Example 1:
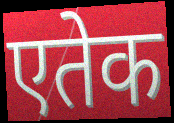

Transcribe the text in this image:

एतेक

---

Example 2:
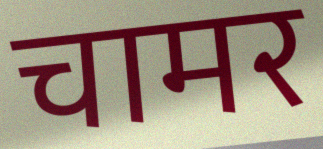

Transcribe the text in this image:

चामर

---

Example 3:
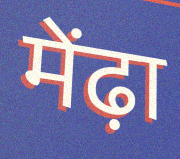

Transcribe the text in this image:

मेंढ़ा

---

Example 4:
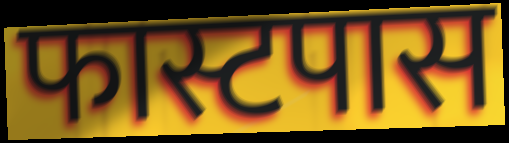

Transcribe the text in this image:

फास्टपास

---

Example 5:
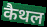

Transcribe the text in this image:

कैथल